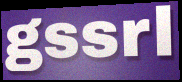
gssrl